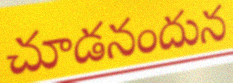
చూడనందున